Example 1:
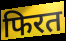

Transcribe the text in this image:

फिरत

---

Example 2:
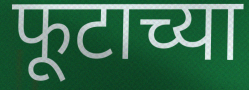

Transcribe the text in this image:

फूटाच्या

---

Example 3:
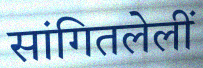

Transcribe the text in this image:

सांगितलेलीं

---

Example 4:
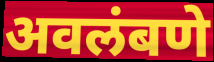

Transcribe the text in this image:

अवलंबणे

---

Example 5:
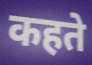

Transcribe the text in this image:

कहते